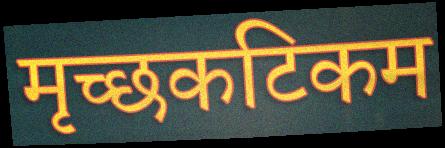
मृच्छकटिकम